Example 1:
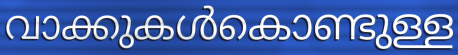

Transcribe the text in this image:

വാക്കുകൾകൊണ്ടുള്ള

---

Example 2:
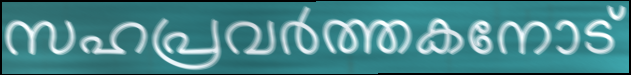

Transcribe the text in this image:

സഹപ്രവർത്തകനോട്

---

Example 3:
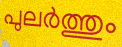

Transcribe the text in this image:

പുലർത്തും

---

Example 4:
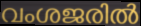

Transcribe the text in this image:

വംശജരിൽ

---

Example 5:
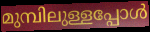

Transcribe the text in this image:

മുമ്പിലുള്ളപ്പോൾ